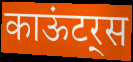
काऊंटर्स